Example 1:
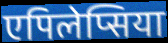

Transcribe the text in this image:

एपिलेप्सिया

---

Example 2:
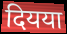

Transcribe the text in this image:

दियया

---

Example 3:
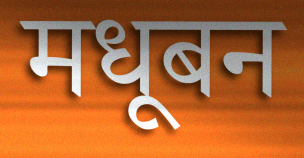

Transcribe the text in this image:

मधूबन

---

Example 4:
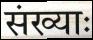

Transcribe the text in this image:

संख्याः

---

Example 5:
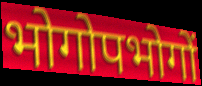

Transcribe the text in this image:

भोगोपभोगों